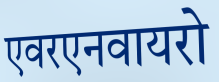
एवरएनवायरो